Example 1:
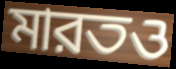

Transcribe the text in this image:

মারতও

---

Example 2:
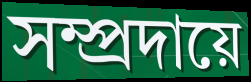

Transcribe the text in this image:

সম্প্রদায়ে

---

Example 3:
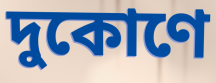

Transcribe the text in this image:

দুকোণে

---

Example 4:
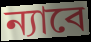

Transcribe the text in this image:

ন্যাবে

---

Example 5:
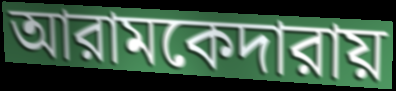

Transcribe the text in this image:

আরামকেদারায়